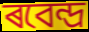
ৰবেন্দ্ৰ